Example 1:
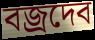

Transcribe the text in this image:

বজ্রদেব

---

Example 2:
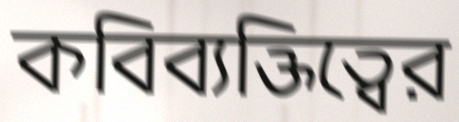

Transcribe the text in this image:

কবিব্যক্তিত্বের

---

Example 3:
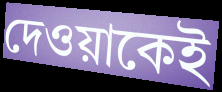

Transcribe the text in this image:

দেওয়াকেই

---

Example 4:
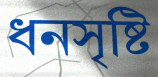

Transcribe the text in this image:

ধনসৃষ্টি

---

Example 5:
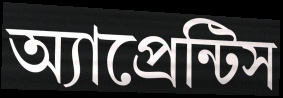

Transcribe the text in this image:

অ্যাপ্রেন্টিস